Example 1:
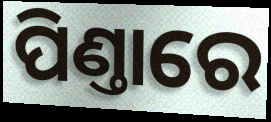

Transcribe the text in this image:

ପିଣ୍ତାରେ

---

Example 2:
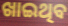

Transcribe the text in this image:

ଖାଇଥିବ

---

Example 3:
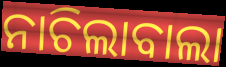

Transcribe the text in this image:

ନାଚିଲାବାଲା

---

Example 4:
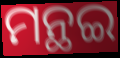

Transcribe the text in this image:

ମନ୍ଥଇ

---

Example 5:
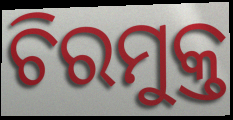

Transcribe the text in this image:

ଚିରମୁକ୍ତ